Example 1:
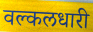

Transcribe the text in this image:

वल्कलधारी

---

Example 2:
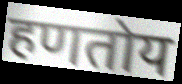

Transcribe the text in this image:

हणतोय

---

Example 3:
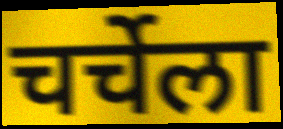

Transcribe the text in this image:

चर्चेला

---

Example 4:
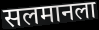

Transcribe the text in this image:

सलमानला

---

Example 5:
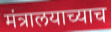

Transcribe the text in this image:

मंत्रालयाच्याच